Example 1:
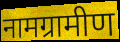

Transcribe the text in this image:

नामग्रामीण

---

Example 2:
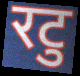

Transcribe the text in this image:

रटु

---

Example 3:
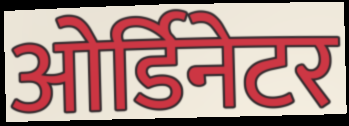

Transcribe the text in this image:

ओर्डिनेटर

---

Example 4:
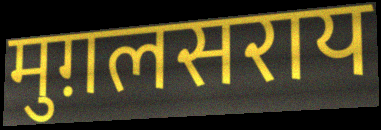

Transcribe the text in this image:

मुग़लसराय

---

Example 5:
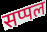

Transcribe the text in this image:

सप्पल